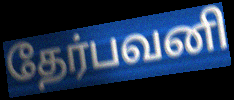
தேர்பவனி